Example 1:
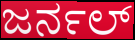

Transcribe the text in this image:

ಜರ್ನಲ್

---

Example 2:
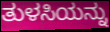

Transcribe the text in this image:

ತುಳಸಿಯನ್ನು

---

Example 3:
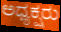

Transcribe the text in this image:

ಅಧ್ಯಕ್ಷರು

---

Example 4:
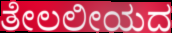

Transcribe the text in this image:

ತೇಲಲೀಯದ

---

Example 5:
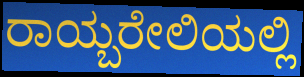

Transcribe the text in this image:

ರಾಯ್ಬರೇಲಿಯಲ್ಲಿ